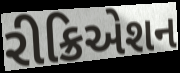
રીક્રિએશન